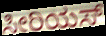
ಸೀರಿಯಸ್